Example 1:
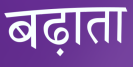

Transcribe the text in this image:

बढ़ाता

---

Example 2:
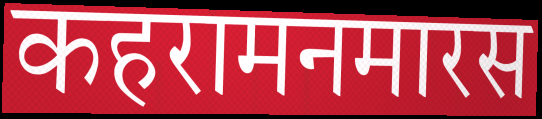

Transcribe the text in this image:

कहरामनमारस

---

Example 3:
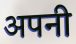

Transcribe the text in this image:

अपनी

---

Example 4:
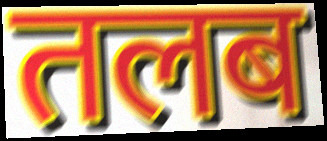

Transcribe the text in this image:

तलब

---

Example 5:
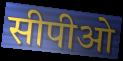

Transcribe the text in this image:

सीपीओ